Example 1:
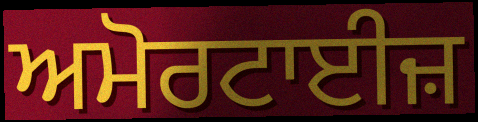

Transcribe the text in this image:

ਅਮੋਰਟਾਈਜ਼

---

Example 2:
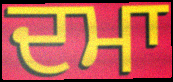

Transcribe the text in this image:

ਦਮਾ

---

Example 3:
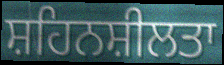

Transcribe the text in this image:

ਸ਼ਹਿਨਸ਼ੀਲਤਾ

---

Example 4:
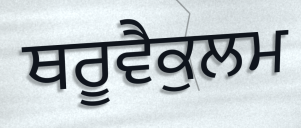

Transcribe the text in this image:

ਥਰੂਵੈਕੁਲਮ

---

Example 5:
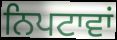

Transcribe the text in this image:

ਨਿਪਟਾਵਾਂ